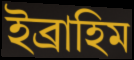
ইব্ৰাহিম